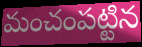
మంచంపట్టిన